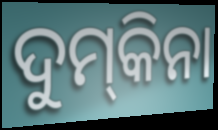
ଦୁମ୍‌କିନା